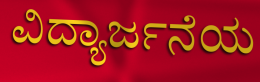
ವಿದ್ಯಾರ್ಜನೆಯ